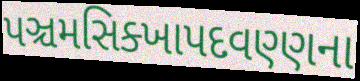
પઞ્ચમસિક્ખાપદવણ્ણના